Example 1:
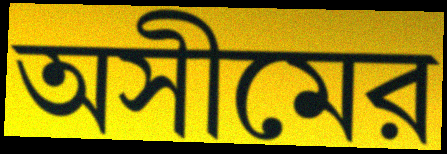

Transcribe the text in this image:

অসীমের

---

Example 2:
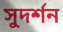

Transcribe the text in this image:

সুদর্শন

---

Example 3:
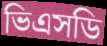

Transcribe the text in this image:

ভিএসডি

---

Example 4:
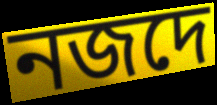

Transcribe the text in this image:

নজদে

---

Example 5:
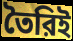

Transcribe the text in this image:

তৈরিই